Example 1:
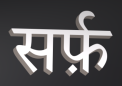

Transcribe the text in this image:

सर्फ़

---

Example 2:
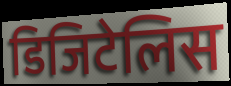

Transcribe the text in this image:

डिजिटेलिस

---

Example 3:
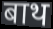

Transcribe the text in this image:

बाथ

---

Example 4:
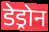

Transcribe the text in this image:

डेड्रोन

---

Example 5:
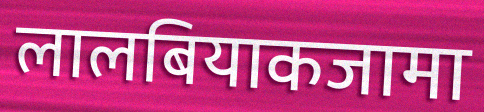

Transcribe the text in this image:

लालबियाकजामा